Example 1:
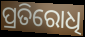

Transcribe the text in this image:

ପ୍ରତିରୋଧି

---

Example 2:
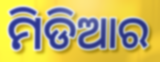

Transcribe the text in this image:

ମିଡିଆର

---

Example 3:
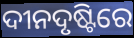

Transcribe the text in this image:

ଦୀନଦୃଷ୍ଟିରେ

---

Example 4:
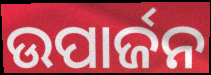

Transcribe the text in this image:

ଉପାର୍ଜନ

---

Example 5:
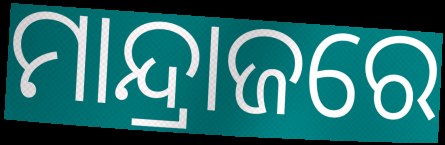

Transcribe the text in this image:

ମାନ୍ଦ୍ରାଜରେ